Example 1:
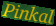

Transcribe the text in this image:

Pinkal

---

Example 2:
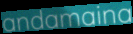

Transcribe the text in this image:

andamaina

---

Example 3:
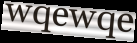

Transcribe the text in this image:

wqewqe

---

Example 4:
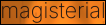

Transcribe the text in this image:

magisterial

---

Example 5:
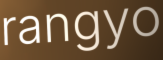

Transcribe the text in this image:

rangyo